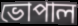
ভোপাল